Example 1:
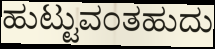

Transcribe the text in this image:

ಹುಟ್ಟುವಂತಹುದು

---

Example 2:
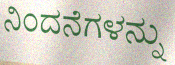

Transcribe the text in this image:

ನಿಂದನೆಗಳನ್ನು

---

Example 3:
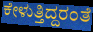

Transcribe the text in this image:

ಕೇಳುತ್ತಿದ್ದರಂತೆ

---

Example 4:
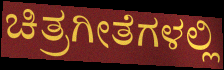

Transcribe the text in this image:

ಚಿತ್ರಗೀತೆಗಳಲ್ಲಿ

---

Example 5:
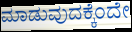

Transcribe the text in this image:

ಮಾಡುವುದಕ್ಕೆಂದೇ